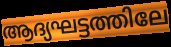
ആദ്യഘട്ടത്തിലേ